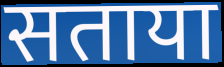
सताया